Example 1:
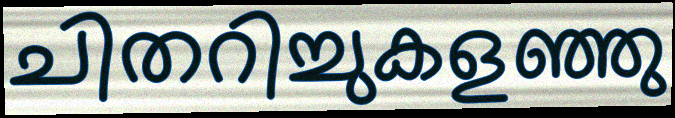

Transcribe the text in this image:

ചിതറിച്ചുകളഞ്ഞു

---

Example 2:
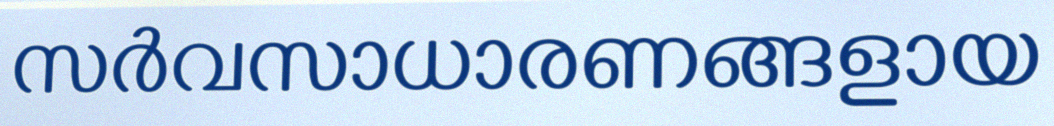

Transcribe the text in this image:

സർവസാധാരണങ്ങളായ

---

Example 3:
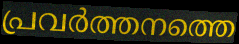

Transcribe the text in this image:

പ്രവർത്തനത്തെ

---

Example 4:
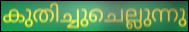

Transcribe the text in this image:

കുതിച്ചുചെല്ലുന്നു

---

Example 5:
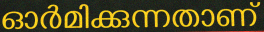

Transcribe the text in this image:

ഓർമിക്കുന്നതാണ്